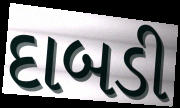
દાબડી